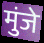
मुंजे